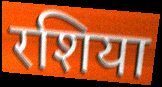
रशिया